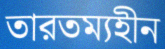
তারতম্যহীন